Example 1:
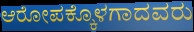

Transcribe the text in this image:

ಆರೋಪಕ್ಕೊಳಗಾದವರು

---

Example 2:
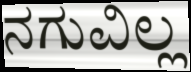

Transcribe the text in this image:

ನಗುವಿಲ್ಲ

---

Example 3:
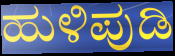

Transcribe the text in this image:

ಹುಳಿಪುಡಿ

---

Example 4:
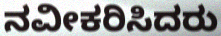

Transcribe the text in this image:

ನವೀಕರಿಸಿದರು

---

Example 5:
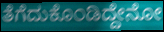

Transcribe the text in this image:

ತೆಗೆದುಕೊಂಡಿದ್ದೇನೋ